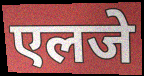
एलजे